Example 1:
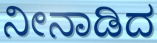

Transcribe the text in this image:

ನೀನಾಡಿದ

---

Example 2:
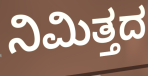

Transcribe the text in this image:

ನಿಮಿತ್ತದ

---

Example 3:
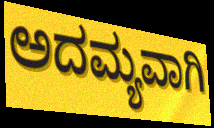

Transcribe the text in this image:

ಅದಮ್ಯವಾಗಿ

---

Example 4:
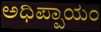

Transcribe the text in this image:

ಅಧಿಪ್ಪಾಯಂ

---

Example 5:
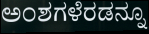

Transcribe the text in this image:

ಅಂಶಗಳೆರಡನ್ನೂ